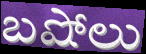
బషోలు